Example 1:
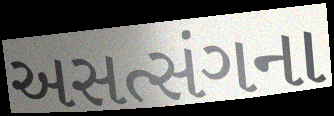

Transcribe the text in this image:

અસત્સંગના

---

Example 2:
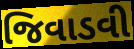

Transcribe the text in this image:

જિવાડવી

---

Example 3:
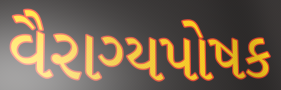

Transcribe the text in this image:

વૈરાગ્યપોષક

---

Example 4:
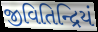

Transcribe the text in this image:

જીવિતિન્દ્રિયં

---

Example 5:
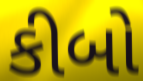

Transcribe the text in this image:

કીબો